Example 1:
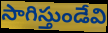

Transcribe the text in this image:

సాగిస్తుండేవి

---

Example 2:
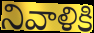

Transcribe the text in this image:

నివాళికి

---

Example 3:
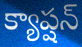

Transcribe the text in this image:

క్యాప్షన్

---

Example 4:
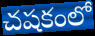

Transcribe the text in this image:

చషకంలో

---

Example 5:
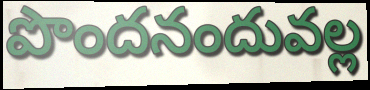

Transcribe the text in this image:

పొందనందువల్ల